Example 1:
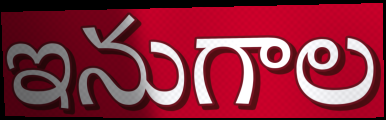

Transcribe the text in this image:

ఇనుగాల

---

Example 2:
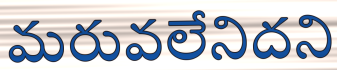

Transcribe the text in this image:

మరువలేనిదని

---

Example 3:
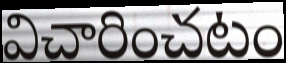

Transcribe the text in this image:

విచారించటం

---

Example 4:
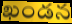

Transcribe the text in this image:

ఖండన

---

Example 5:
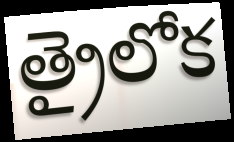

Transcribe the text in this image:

త్రైలోక